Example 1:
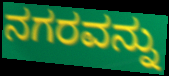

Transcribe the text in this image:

ನಗರವನ್ನು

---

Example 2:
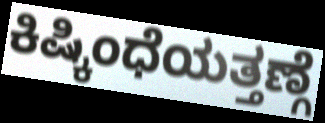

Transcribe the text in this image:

ಕಿಷ್ಕಿಂಧೆಯತ್ತಣ್ಗೆ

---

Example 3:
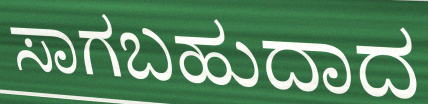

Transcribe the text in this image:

ಸಾಗಬಹುದಾದ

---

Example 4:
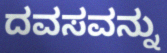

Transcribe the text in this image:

ದವಸವನ್ನು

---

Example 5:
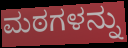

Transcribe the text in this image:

ಮಠಗಳನ್ನು